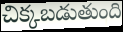
చిక్కబడుతుంది